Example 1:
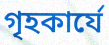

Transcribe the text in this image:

গৃহকার্যে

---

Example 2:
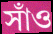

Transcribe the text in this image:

সাঁও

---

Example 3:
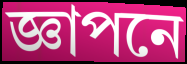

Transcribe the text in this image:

জ্ঞাপনে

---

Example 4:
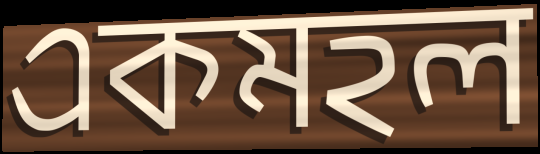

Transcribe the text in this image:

একমহল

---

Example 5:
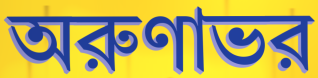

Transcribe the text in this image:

অরুণাভর